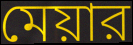
মেয়ার